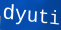
dyuti